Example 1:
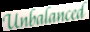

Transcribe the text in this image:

Unbalanced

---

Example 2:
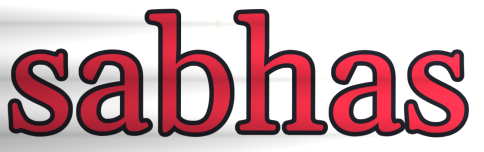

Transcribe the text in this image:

sabhas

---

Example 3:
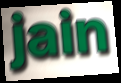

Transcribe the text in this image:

jain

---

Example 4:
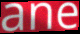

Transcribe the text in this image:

ane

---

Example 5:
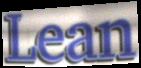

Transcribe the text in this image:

Lean